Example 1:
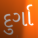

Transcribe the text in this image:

દુર્ગા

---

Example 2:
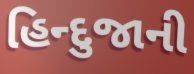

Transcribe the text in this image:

હિન્દુજાની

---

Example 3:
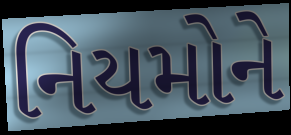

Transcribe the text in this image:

નિયમોને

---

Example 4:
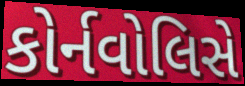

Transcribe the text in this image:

કોર્નવોલિસે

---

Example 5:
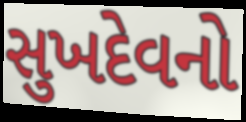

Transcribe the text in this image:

સુખદેવનો